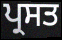
ਪ੍ਰਸਤ